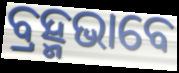
ବ୍ରହ୍ମଭାବେ